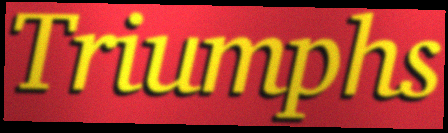
Triumphs